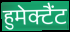
हुमेक्टैंट